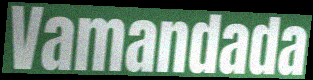
Vamandada